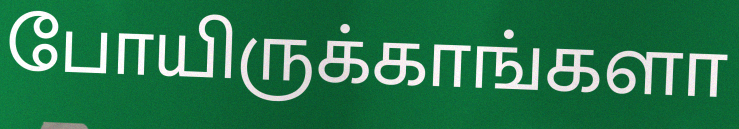
போயிருக்காங்களா